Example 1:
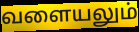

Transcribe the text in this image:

வளையலும்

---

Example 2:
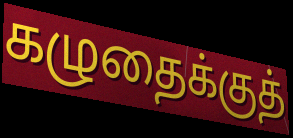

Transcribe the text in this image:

கழுதைக்குத்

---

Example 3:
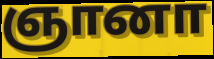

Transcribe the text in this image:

ஞானா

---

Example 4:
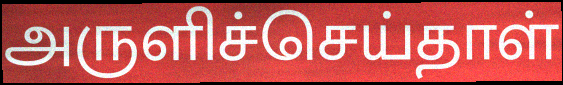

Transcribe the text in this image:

அருளிச்செய்தாள்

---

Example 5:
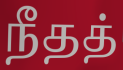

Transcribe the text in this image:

நீதத்